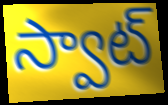
స్వాట్